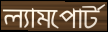
ল্যামপোর্ট